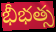
భీభత్స